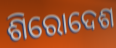
ଶିରୋଦେଶ